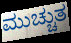
ಮುಚ್ಚುತ